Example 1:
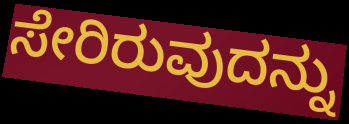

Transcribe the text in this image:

ಸೇರಿರುವುದನ್ನು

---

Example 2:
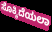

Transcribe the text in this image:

ಸೊಕ್ಕಿದೆಯಲಾ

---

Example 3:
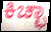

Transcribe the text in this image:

ಕಿಚ್ಛಾ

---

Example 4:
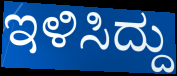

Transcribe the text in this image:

ಇಳಿಸಿದ್ದು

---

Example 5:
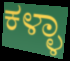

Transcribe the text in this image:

ಕಳ್ಳಾ